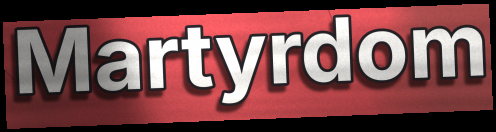
Martyrdom